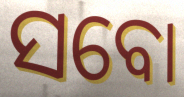
ସବୋ